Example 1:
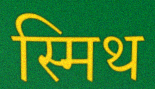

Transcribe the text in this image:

स्मिथ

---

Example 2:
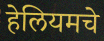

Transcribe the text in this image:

हेलियमचे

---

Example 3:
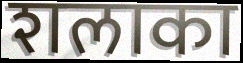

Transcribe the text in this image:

शलाका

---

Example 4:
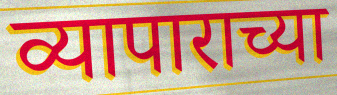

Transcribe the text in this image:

व्यापाराच्या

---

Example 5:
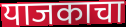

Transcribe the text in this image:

याजकाचा